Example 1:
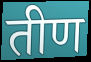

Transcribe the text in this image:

तीण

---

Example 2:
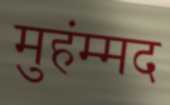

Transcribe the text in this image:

मुहंम्मद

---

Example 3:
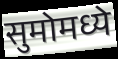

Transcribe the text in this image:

सुमोमध्ये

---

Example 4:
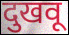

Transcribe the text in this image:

दुखवू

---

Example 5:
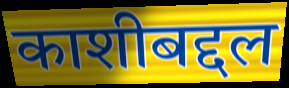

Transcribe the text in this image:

काशीबद्दल